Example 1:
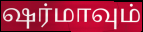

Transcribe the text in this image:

ஷர்மாவும்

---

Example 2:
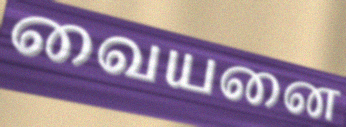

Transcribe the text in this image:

வையனை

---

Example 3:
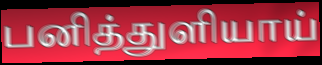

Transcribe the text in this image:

பனித்துளியாய்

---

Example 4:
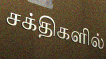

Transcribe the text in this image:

சக்திகளில்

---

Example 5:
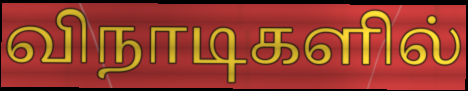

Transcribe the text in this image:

விநாடிகளில்